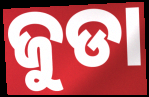
ଜୁଡା